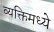
व्यक्तिमध्ये